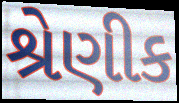
શ્રેણીક